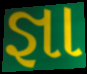
જ્ઞા